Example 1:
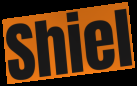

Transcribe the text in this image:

Shiel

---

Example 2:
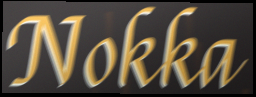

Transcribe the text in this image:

Nokka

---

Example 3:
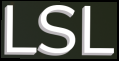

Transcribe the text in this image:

LSL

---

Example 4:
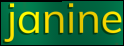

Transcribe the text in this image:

janine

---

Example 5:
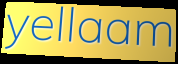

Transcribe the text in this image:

yellaam